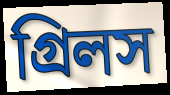
গ্রিলস